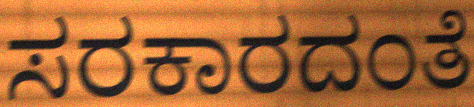
ಸರಕಾರದಂತೆ